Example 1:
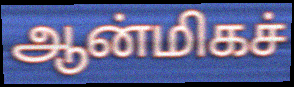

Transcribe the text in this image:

ஆன்மிகச்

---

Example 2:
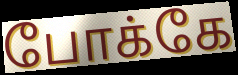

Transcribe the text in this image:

போக்கே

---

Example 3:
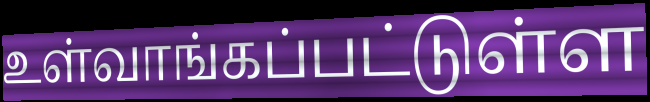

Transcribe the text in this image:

உள்வாங்கப்பட்டுள்ள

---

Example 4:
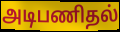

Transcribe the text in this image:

அடிபணிதல்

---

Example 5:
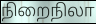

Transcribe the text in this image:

நிறைநிலா